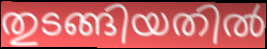
തുടങ്ങിയതിൽ